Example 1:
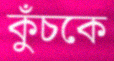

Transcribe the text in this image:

কুঁচকে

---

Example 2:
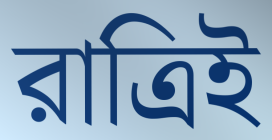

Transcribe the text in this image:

রাত্রিই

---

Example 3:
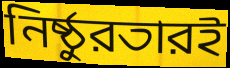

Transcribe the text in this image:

নিষ্ঠুরতারই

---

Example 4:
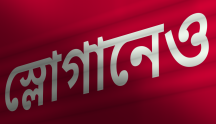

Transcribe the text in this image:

স্লোগানেও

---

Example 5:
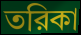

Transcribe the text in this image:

তরিকা